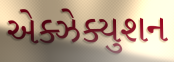
એક્ઝેક્યુશન